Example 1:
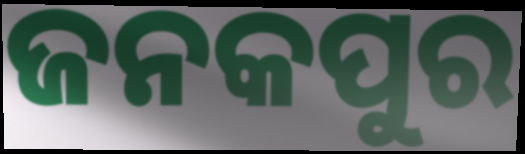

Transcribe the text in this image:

ଜନକପୁର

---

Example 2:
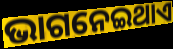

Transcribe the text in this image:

ଭାଗନେଇଥାଏ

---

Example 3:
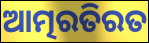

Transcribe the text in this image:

ଆତ୍ମରତିରତ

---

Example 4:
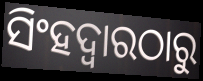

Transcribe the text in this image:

ସିଂହଦ୍ୱାରଠାରୁ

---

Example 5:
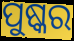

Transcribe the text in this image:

ପୁଷ୍କର